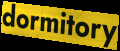
dormitory